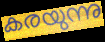
കരയുന്നു